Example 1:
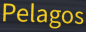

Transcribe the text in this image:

Pelagos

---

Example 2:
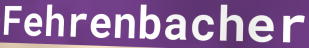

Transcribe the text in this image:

Fehrenbacher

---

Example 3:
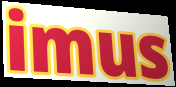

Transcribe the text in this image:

imus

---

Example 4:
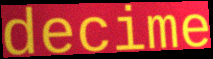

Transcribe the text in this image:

decime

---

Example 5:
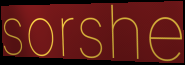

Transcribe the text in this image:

sorshe